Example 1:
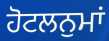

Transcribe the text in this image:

ਹੋਟਲਨੁਮਾਂ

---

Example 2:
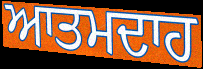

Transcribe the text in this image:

ਆਤਮਦਾਹ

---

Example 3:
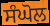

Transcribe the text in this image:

ਸੰਘੋਲ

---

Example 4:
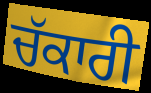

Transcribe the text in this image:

ਚੱਕਾਰੀ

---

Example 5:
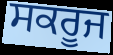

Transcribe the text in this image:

ਸਕਰੂਜ